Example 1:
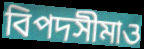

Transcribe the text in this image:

বিপদসীমাও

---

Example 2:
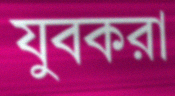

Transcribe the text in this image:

যুবকরা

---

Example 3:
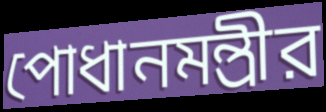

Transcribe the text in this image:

পোধানমন্ত্রীর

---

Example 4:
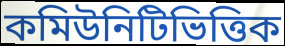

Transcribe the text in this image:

কমিউনিটিভিত্তিক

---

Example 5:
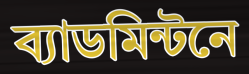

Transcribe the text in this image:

ব্যাডমিন্টনে